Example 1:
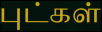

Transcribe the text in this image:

புட்கள்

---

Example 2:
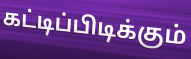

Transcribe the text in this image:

கட்டிப்பிடிக்கும்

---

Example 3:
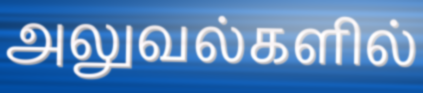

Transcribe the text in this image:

அலுவல்களில்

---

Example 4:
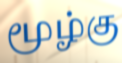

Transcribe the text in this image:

மூழ்கு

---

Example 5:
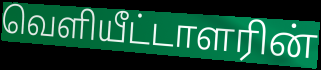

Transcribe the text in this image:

வெளியீட்டாளரின்